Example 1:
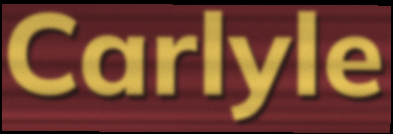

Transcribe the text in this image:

Carlyle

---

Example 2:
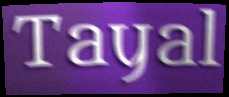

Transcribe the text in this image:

Tayal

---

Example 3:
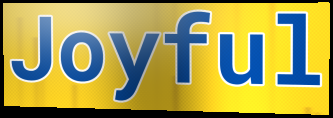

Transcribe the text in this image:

Joyful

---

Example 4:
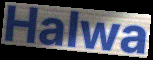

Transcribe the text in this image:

Halwa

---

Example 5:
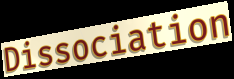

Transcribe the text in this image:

Dissociation